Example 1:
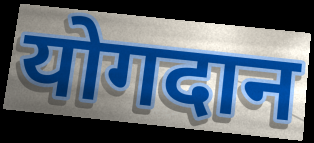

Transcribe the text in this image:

योगदान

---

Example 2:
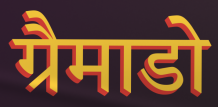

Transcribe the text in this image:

ग्रैमाडो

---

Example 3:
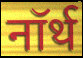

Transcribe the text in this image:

नॉर्थ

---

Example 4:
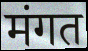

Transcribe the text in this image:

मंगत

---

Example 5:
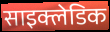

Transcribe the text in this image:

साइक्लेडिक